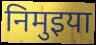
निमुइया